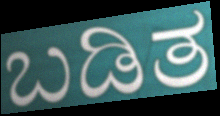
ಬಡಿತ